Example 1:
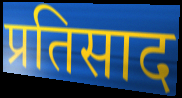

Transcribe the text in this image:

प्रतिसाद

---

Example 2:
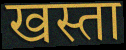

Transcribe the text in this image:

खस्ता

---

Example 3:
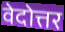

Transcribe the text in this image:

वेदोत्तर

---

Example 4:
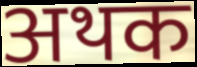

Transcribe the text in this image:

अथक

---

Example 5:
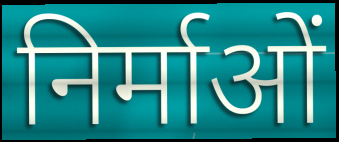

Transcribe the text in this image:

निर्माओं